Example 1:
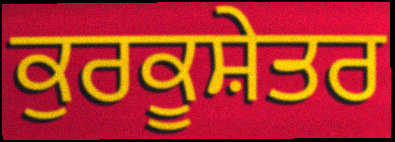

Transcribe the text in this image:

ਕੁਰਕੂਸ਼ੇਤਰ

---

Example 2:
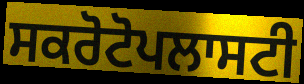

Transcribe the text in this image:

ਸਕਰੋਟੋਪਲਾਸਟੀ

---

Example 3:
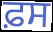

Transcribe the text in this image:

ਫ਼ਸ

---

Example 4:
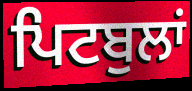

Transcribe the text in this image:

ਪਿਟਬੁਲਾਂ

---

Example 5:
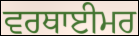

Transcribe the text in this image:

ਵਰਥਾਈਮਰ